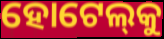
ହୋଟେଲ୍‌କୁ